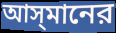
আস্‌মানের